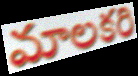
మాలకరి